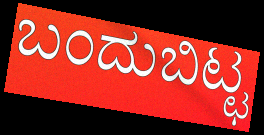
ಬಂದುಬಿಟ್ಟ